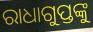
ରାଧାଗୁପ୍ତଙ୍କୁ